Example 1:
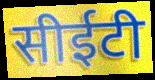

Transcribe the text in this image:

सीईटी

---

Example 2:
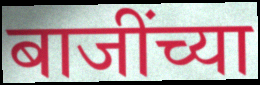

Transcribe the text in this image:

बाजींच्या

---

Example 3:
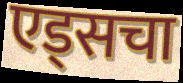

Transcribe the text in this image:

एड्सचा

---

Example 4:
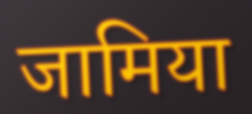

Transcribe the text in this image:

जामिया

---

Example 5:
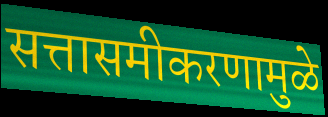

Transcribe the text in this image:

सत्तासमीकरणामुळे